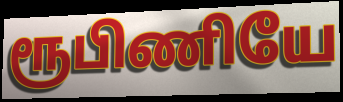
ரூபிணியே